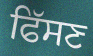
ਫਿੱਸਣ